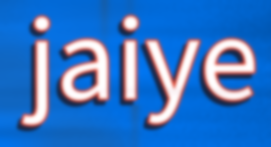
jaiye